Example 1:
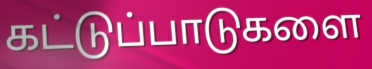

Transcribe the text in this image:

கட்டுப்பாடுகளை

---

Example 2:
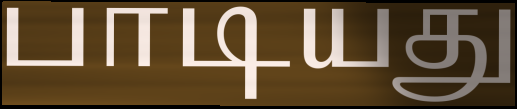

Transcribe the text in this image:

பாடியது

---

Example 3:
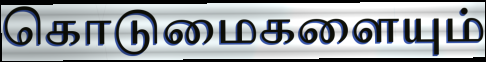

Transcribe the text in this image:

கொடுமைகளையும்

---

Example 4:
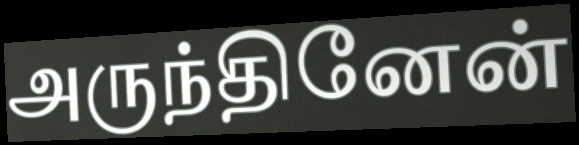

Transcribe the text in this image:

அருந்தினேன்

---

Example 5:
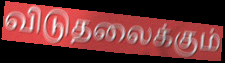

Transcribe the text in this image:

விடுதலைக்கும்